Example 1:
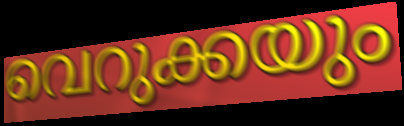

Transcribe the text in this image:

വെറുക്കയും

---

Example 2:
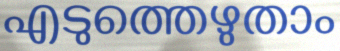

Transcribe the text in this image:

എടുത്തെഴുതാം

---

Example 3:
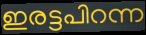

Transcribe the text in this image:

ഇരട്ടപിറന്ന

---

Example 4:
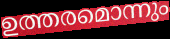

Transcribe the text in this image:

ഉത്തരമൊന്നും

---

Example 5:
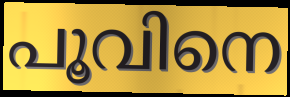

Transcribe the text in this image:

പൂവിനെ